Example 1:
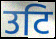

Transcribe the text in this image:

उटि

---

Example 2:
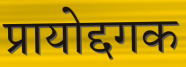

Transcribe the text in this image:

प्रायोद्दगक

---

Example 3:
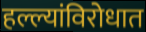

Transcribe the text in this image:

हल्ल्यांविरोधात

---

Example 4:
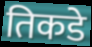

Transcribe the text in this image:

तिकडे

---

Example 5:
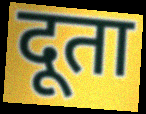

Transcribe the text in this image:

दूता